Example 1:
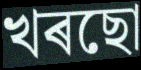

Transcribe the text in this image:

খৰছো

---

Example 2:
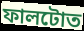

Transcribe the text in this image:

ফালটোত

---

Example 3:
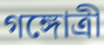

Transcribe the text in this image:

গঙ্গোত্ৰী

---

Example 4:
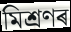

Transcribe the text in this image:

মিশ্ৰণৰ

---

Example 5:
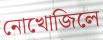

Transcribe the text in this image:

নোখোজিলে